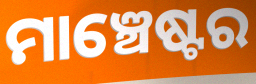
ମାଞ୍ଚେଷ୍ଟର